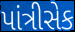
પાંત્રીસેક